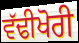
ਵੱਢੀਖੋਰੀ